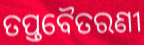
ତପ୍ତବୈତରଣୀ